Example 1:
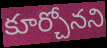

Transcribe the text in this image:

కూర్చోనని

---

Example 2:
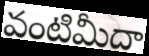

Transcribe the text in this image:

వంటిమీదా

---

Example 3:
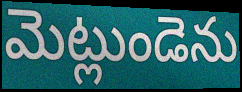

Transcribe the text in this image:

మెట్లుండెను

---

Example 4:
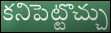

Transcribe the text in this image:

కనిపెట్టొచ్చు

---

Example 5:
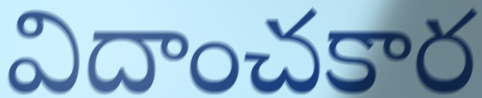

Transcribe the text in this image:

విదాంచకార